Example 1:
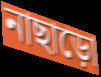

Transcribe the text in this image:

নাছাড়ো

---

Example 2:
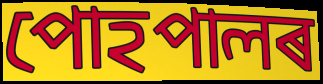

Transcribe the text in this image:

পোহপালৰ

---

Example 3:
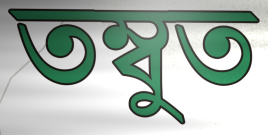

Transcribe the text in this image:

তম্বুত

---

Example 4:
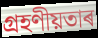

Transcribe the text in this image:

গ্ৰহণীয়তাৰ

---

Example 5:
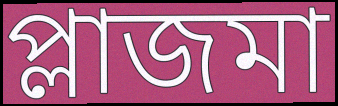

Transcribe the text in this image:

প্লাজমা